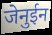
जेनुईन